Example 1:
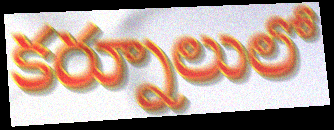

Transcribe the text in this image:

కర్నూలులో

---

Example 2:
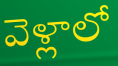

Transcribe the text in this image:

వెళ్లాలో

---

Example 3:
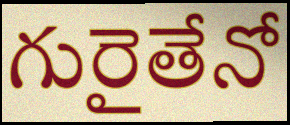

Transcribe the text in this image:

గురైతేనో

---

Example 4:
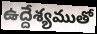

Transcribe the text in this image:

ఉద్దేశ్యముతో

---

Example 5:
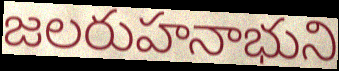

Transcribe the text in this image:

జలరుహనాభుని